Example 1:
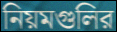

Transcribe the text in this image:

নিয়মগুলির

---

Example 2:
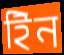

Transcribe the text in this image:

ইিন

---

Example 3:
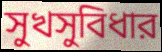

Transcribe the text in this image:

সুখসুবিধার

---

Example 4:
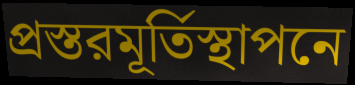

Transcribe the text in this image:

প্রস্তরমূর্তিস্থাপনে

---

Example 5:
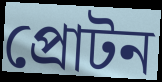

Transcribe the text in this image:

প্রোটন